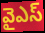
వైఎస్